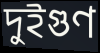
দুইগুণ